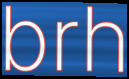
brh